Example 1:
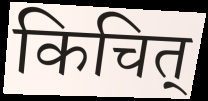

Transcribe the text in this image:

किचित्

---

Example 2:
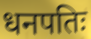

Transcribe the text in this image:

धनपतिः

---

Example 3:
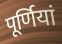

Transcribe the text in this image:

पूर्णियां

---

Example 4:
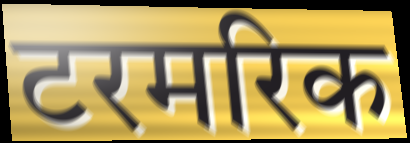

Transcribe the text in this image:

टरमरिक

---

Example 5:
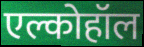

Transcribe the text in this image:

एल्कोहॉल